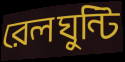
রেলঘুন্টি